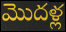
మొదళ్ల